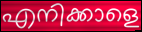
എനിക്കാളെ